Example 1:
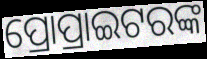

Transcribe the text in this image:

ପ୍ରୋପ୍ରାଇଟରଙ୍କ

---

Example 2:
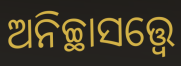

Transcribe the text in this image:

ଅନିଚ୍ଛାସତ୍ତ୍ବେ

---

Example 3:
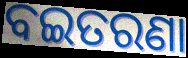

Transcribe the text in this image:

ବଇତରଣା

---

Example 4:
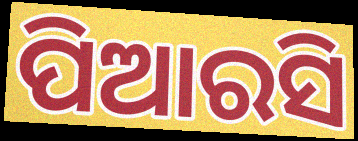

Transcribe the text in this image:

ପିଆରସି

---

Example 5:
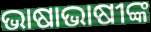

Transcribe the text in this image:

ଭାଷାଭାଷୀଙ୍କ